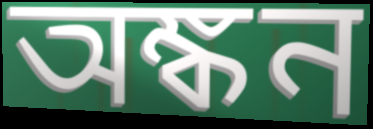
অঙ্কন